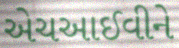
એચઆઈવીને